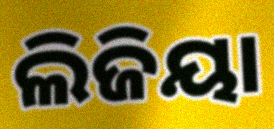
ଲିଜିୟା